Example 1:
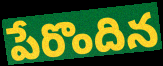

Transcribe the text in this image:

పేరొందిన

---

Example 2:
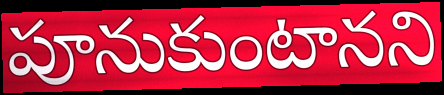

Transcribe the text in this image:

పూనుకుంటానని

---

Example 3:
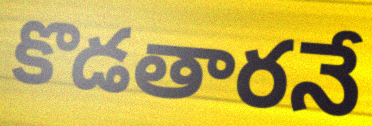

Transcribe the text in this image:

కొడతారనే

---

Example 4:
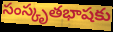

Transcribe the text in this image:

సంస్కృతభాషకు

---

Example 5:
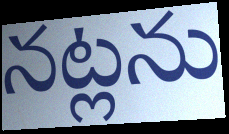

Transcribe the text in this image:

నట్లను